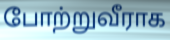
போற்றுவீராக